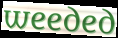
weeded